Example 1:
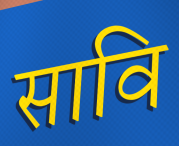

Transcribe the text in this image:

सावि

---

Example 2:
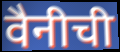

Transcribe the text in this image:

वैनीची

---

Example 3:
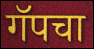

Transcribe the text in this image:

गॅपचा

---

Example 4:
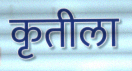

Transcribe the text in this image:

कृतीला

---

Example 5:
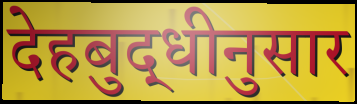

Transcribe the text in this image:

देहबुद्धीनुसार